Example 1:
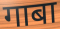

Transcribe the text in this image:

गाबा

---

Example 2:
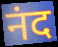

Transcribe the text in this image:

नंद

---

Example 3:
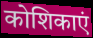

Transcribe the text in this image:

कोशिकाएं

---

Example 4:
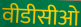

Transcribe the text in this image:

वीडीसीओ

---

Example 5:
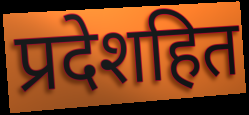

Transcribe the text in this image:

प्रदेशहित